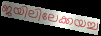
ജയിലിലേക്കയച്ച